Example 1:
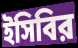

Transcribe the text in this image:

ইসিবির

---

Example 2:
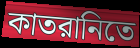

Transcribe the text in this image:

কাতরানিতে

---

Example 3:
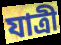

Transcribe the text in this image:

যাত্রী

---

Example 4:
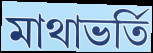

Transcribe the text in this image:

মাথাভর্তি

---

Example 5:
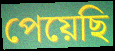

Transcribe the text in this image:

পেয়েছি